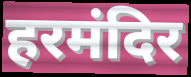
हरमंदिर